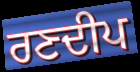
ਰਣਦੀਪ